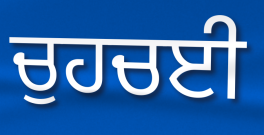
ਚੁਹਚਈ